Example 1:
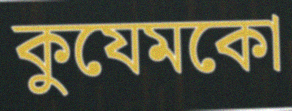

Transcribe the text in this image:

কুযেমকো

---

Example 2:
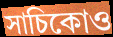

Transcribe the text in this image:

সাচিকোও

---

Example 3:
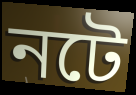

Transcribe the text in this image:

নটে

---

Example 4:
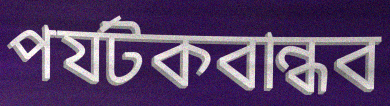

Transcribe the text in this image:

পর্যটকবান্ধব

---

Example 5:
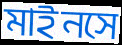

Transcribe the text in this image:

মাইনসে